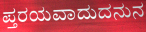
ಪ್ತರಯವಾದುದನುನ